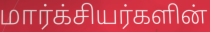
மார்க்சியர்களின்